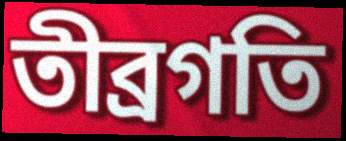
তীব্রগতি